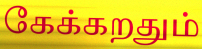
கேக்கறதும்